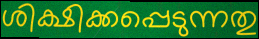
ശിക്ഷിക്കപ്പെടുന്നതു